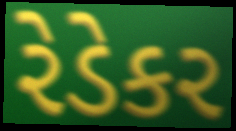
રેડેકર